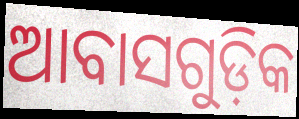
ଆବାସଗୁଡ଼ିକ